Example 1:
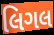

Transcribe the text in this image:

લિગલ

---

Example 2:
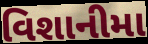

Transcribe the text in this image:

વિશાનીમા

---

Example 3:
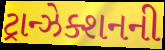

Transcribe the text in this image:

ટ્રાન્ઝેક્શનની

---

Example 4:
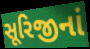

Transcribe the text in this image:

સૂરિજીનાં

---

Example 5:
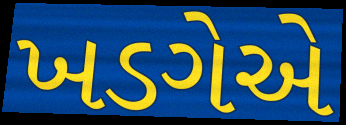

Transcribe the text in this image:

ખડગેએ